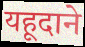
यहूदाने